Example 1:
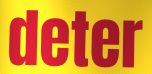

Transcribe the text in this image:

deter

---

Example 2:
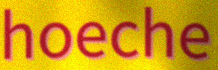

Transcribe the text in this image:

hoeche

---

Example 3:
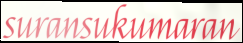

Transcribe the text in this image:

suransukumaran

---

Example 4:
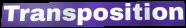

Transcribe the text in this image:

Transposition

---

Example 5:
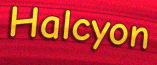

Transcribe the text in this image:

Halcyon